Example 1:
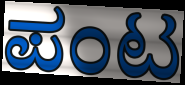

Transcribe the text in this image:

ಪಂಟ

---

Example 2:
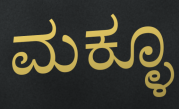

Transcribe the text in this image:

ಮಕ್ಳೂ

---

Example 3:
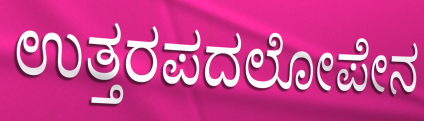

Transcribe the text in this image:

ಉತ್ತರಪದಲೋಪೇನ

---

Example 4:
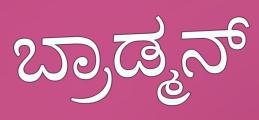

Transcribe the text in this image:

ಬ್ರಾಡ್ಮನ್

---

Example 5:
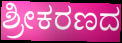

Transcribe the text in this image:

ಶ್ರೀಕರಣದ